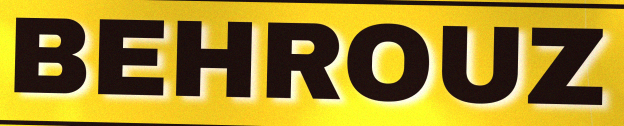
BEHROUZ